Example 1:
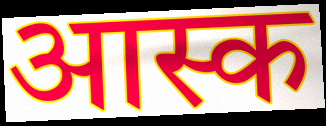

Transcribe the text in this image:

आस्क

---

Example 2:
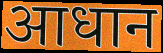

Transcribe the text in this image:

आधान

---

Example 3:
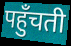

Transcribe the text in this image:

पहुँचती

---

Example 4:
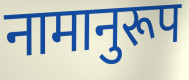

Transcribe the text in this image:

नामानुरूप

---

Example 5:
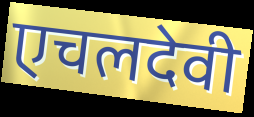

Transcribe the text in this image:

एचलदेवी